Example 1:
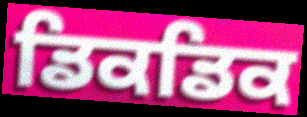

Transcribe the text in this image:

ਡਿਕਡਿਕ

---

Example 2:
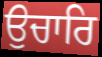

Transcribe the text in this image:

ਉਚਾਰਿ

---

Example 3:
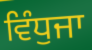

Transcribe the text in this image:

ਵਿੰਧੁਜਾ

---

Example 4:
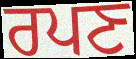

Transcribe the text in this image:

ਰਪਣ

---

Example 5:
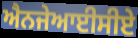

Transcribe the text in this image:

ਐਨਜੇਆਈਸੀਏ